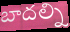
బాదల్ని